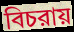
বিচরায়